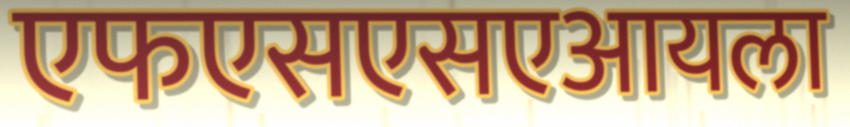
एफएसएसएआयला